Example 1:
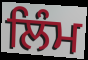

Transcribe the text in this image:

ਲਿੰਮ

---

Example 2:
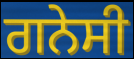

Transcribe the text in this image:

ਗਨੇਸੀ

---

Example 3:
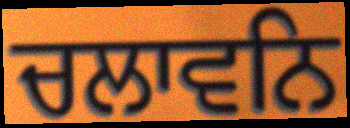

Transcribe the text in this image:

ਚਲਾਵਨਿ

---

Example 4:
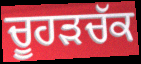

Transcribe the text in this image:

ਚੂਹਡ਼ਚੱਕ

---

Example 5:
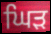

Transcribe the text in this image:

ਘਿੜ